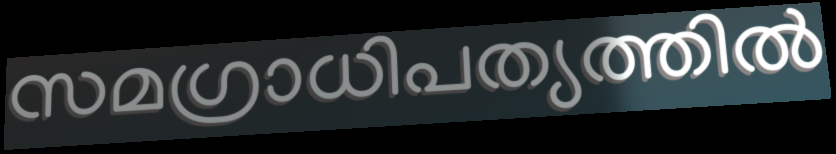
സമഗ്രാധിപത്യത്തിൽ